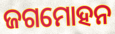
ଜଗମୋହନ